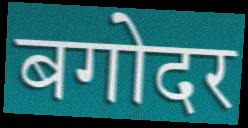
बगोदर